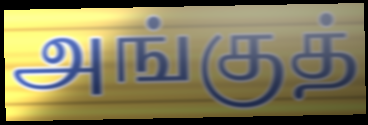
அங்குத்